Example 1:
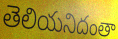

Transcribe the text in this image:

తెలియనిదంతా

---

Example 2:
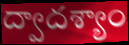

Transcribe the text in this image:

ద్వాదశ్యాం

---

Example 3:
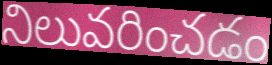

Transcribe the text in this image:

నిలువరించడం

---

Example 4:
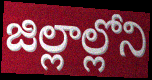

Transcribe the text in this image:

జిల్లాల్లోని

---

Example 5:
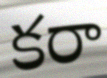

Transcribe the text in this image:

కరా